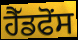
ਹੈੱਡਫੋਂਸ